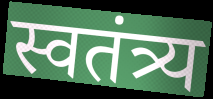
स्वतंत्र्य